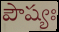
పౌష్యః